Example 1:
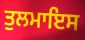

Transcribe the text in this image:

ਤੁਲਮਾਇਸ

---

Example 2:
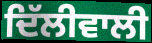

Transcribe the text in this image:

ਦਿੱਲੀਵਾਲੀ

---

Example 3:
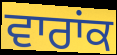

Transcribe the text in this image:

ਵਾਰਾਂਕ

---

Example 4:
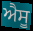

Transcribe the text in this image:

ਐਸੂ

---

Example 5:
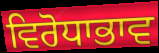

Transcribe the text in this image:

ਵਿਰੋਧਾਭਾਵ